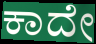
ಕಾದೇ